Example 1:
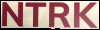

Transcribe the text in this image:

NTRK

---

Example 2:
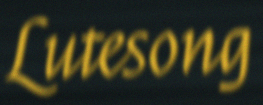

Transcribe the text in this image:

Lutesong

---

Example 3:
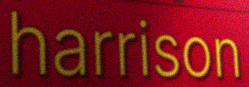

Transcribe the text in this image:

harrison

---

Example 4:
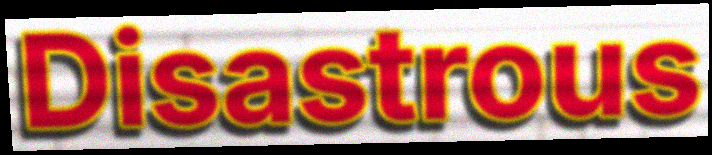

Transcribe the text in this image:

Disastrous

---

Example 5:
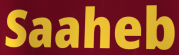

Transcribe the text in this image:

Saaheb